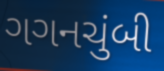
ગગનચુંબી